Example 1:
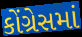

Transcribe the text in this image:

કોંગ્રેસમાં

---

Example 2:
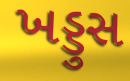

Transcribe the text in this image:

ખડ્ડુસ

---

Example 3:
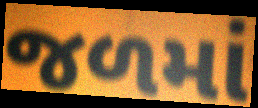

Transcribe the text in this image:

જળમાં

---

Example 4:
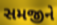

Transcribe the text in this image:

સમજીને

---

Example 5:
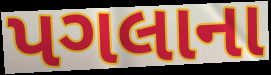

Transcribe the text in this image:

પગલાના